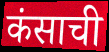
कंसाची